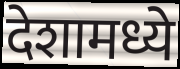
देशामध्ये